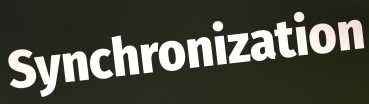
Synchronization